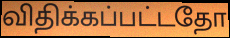
விதிக்கப்பட்டதோ